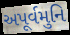
અપૂર્વમુનિ